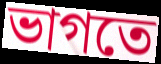
ভাগতে